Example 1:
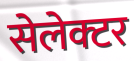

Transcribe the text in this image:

सेलेक्‍टर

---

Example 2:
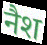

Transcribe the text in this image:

नैश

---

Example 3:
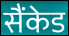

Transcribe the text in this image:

सैंकेड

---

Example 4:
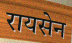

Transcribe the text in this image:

रायसेन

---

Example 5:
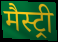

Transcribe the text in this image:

मैस्ट्री